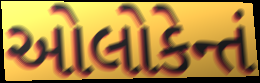
ઓલોકેન્તં